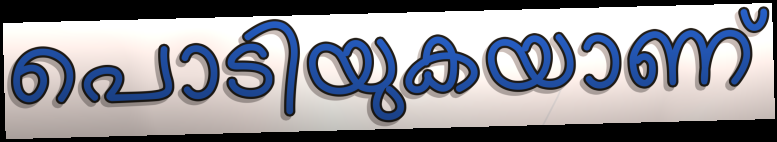
പൊടിയുകയാണ്